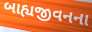
બાહ્યજીવનના